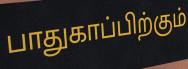
பாதுகாப்பிற்கும்